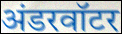
अंडरवॉटर